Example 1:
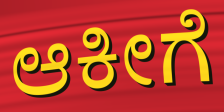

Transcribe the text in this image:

ಆಕೀಗೆ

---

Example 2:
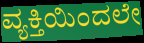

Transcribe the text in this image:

ವ್ಯಕ್ತಿಯಿಂದಲೇ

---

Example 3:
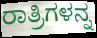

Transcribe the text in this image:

ರಾತ್ರಿಗಳನ್ನ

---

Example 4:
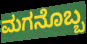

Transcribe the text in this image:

ಮಗನೊಬ್ಬ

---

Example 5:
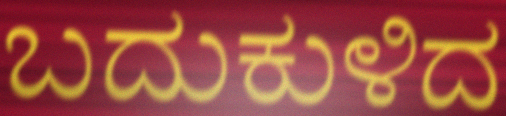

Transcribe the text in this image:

ಬದುಕುಳಿದ